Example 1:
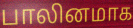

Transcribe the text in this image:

பாலினமாக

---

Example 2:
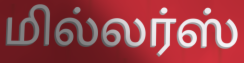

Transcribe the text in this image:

மில்லர்ஸ்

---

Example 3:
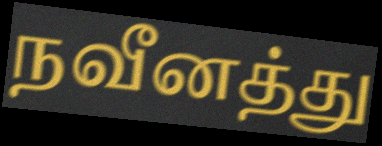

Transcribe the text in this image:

நவீனத்து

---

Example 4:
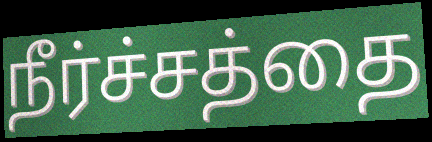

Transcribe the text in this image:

நீர்ச்சத்தை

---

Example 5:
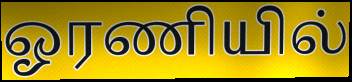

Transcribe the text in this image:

ஓரணியில்